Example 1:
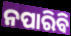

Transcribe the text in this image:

ନପାରିବି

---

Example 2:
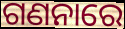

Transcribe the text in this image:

ଗଣନାରେ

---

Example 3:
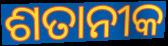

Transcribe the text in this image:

ଶତାନୀକ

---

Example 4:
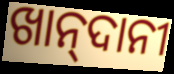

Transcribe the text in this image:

ଖାନ୍‍ଦାନୀ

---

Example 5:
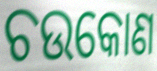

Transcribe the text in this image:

ଚଉକୋଣ